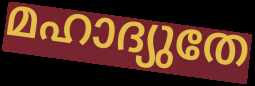
മഹാദ്യുതേ